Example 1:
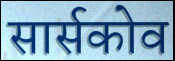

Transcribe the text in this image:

सार्सकोव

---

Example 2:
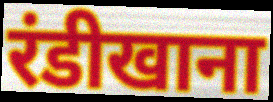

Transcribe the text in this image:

रंडीखाना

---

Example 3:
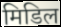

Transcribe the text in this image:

मिडिल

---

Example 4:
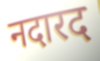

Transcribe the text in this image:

नदारद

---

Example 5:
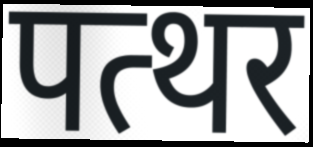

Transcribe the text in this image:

पत्थर